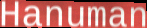
Hanuman